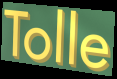
Tolle